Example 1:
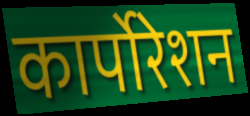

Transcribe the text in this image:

कार्पोरेशन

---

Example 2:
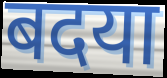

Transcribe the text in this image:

बदया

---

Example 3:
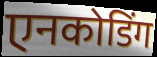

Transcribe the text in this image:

एनकोडिंग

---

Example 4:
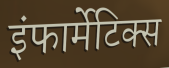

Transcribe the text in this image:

इंफार्मेटिक्स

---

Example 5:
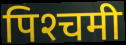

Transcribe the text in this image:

पिश्चमी